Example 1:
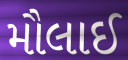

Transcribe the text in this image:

મૌલાઈ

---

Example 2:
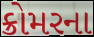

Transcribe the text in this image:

ક્રોમરના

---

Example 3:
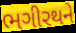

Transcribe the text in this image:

ભગીરથને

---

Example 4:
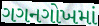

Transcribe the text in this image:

ગગનગોખમાં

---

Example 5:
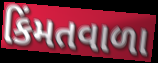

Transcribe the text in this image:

કિંમતવાળા